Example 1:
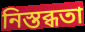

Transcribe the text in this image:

নিস্তব্ধতা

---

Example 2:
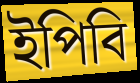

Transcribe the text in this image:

ইপিবি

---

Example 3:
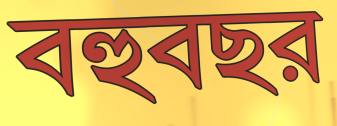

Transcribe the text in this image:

বহুবছর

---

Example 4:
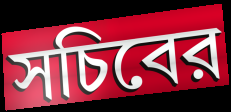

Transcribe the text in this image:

সচিবের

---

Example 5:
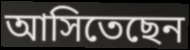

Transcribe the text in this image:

আসিতেছেন